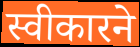
स्वीकारने